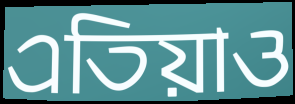
এতিয়াও